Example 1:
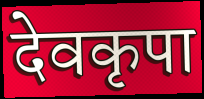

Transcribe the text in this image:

देवकृपा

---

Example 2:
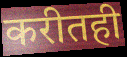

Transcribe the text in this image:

करीतही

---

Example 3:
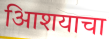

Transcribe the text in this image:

आिशयाचा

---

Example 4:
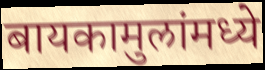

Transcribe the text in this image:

बायकामुलांमध्ये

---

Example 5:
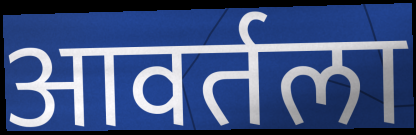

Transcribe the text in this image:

आवर्तला